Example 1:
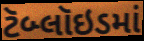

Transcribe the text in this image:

ટૅબ્લૉઇડમાં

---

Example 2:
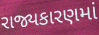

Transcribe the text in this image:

રાજ્યકારણમાં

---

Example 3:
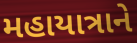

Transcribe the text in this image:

મહાયાત્રાને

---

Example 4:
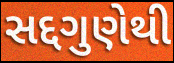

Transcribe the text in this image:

સદ્દગુણેથી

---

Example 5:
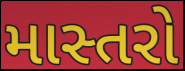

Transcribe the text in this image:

માસ્તરો